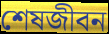
শেষজীবন